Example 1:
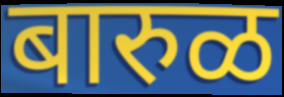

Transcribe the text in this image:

बारुळ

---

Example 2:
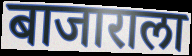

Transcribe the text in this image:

बाजाराला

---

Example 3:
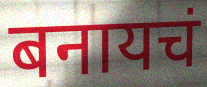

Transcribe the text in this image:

बनायचं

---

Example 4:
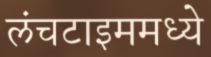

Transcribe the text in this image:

लंचटाइममध्ये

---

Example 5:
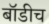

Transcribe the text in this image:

बॉडीच